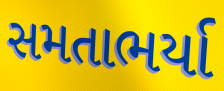
સમતાભર્યા